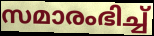
സമാരംഭിച്ച്